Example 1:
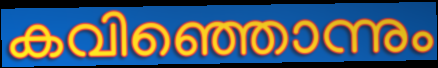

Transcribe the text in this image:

കവിഞ്ഞൊന്നും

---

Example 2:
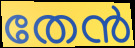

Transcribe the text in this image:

തേൻ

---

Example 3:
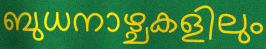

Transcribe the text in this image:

ബുധനാഴ്ചകളിലും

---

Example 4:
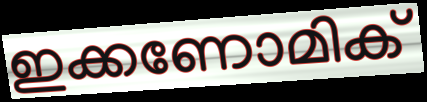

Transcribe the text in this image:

ഇക്കണോമിക്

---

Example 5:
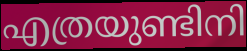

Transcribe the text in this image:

എത്രയുണ്ടിനി